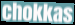
chokkas